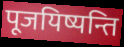
पूजयिष्यन्ति